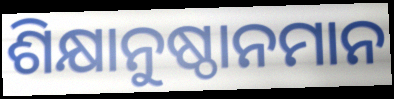
ଶିକ୍ଷାନୁଷ୍ଠାନମାନ